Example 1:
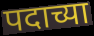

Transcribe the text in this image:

पदाच्या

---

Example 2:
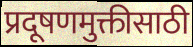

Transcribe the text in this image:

प्रदूषणमुक्तीसाठी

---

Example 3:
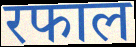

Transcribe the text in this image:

रफाल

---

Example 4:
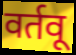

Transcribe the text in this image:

वर्तवू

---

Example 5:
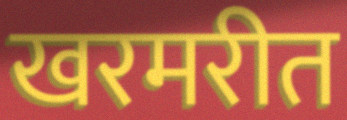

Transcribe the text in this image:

खरमरीत